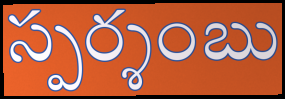
స్పర్శంబు